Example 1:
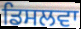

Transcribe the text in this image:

ਡਿਸਲਵਾ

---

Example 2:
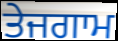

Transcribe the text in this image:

ਤੇਜਗਾਮ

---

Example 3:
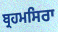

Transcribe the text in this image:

ਬ੍ਰਹਮਸਿਰਾ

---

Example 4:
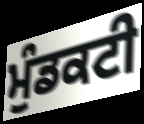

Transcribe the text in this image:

ਮੁੰਡਕਟੀ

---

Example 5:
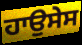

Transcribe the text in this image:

ਹਾਉਸੇਸ